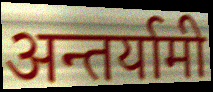
अन्तर्यामी